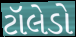
ટૉલેડો